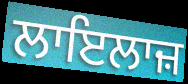
ਲਾਇਲਾਜ਼